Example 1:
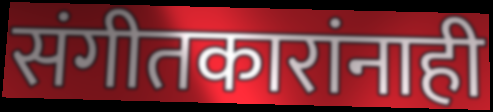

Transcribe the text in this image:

संगीतकारांनाही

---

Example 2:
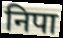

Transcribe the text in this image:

निपा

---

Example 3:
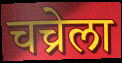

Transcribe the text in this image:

चच्रेला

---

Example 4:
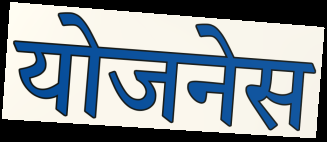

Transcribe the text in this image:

योजनेस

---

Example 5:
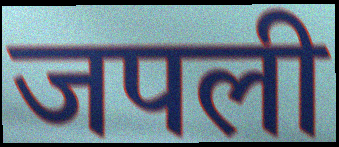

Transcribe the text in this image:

जपली